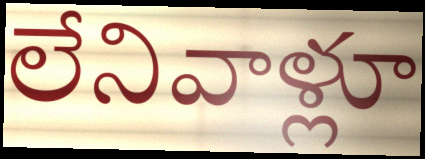
లేనివాళ్లూ